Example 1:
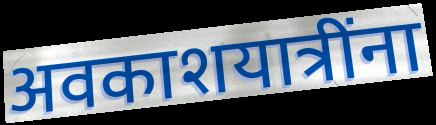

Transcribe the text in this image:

अवकाशयात्रींना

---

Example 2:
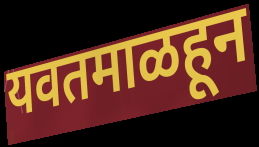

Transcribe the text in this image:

यवतमाळहून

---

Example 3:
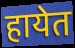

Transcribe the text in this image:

हायेत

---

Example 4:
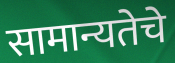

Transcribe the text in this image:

सामान्यतेचे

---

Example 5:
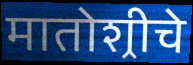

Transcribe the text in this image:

मातोश्रीचे